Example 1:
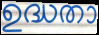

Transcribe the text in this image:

ഉദ്ധതാ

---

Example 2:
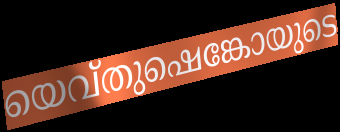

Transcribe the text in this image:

യെവ്തുഷെങ്കോയുടെ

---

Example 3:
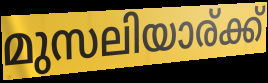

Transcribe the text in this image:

മുസലിയാര്ക്ക്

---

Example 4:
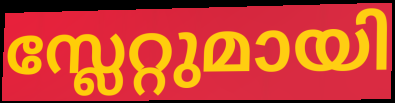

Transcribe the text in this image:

സ്ലേറ്റുമായി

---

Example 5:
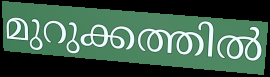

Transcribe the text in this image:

മുറുക്കത്തിൽ